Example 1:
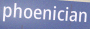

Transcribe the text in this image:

phoenician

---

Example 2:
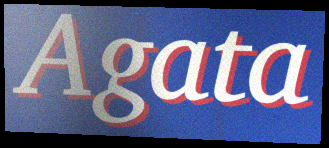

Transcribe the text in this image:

Agata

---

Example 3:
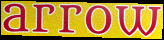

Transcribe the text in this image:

arrow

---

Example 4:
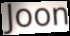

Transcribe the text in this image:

Joon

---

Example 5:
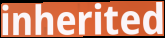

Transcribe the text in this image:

inherited